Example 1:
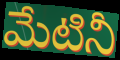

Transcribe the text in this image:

మేటినీ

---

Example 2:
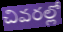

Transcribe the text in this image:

చివరల్లో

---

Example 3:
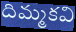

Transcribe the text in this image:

దిమ్మకవి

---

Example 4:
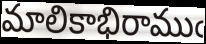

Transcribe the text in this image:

మాలికాభిరాముఁ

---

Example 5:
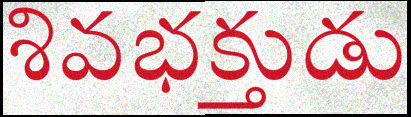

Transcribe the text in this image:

శివభక్తుడు